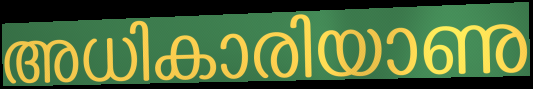
അധികാരിയാണു